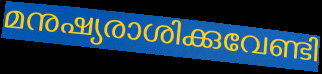
മനുഷ്യരാശിക്കുവേണ്ടി